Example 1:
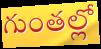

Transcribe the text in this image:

గుంతల్లో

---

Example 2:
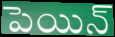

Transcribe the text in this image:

పెయిన్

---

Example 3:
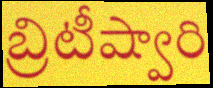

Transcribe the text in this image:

బ్రిటీష్వారి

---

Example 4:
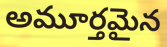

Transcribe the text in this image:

అమూర్తమైన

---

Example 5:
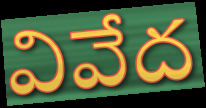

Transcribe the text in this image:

వివేద